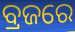
ବ୍ରଜରେ